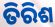
ତିରିଶ